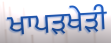
ਖਾਪੜਖੇੜੀ